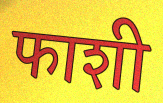
फाशी